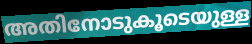
അതിനോടുകൂടെയുള്ള